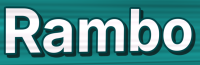
Rambo